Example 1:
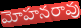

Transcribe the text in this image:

మోహనరావు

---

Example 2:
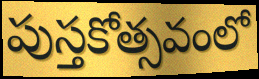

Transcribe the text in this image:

పుస్తకోత్సవంలో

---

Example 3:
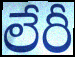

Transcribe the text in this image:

లేరీ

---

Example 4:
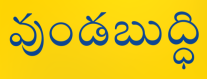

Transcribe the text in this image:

వుండబుద్ధి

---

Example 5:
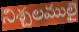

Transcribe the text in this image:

నిశ్చలములై